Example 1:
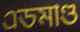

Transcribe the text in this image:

এডমাণ্ড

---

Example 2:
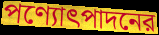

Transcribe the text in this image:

পণ্যোৎপাদনের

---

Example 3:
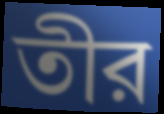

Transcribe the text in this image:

তীর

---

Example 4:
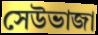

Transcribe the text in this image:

সেউভাজা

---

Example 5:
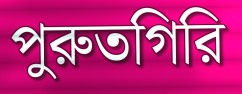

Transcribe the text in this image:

পুরুতগিরি